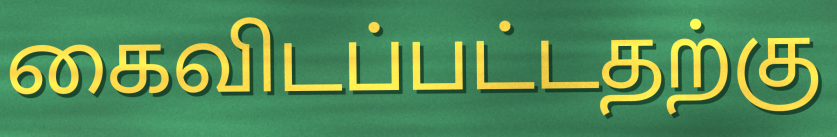
கைவிடப்பட்டதற்கு